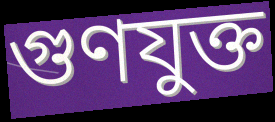
গুণযুক্ত